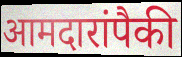
आमदारांपैकी